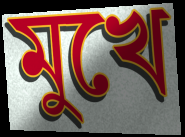
মুখে